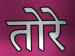
तोरे